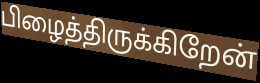
பிழைத்திருக்கிறேன்